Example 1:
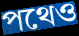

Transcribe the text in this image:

পথেও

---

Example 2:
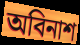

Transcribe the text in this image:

অবিনাশ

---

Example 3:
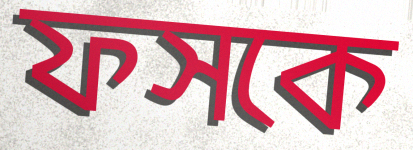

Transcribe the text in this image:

ফসকে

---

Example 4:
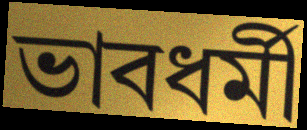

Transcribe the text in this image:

ভাবধর্মী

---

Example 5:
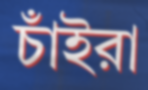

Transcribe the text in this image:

চাঁইরা